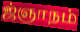
ஜ்ஞாநம்